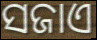
ସଜାଏ